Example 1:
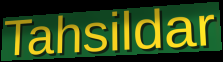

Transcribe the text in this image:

Tahsildar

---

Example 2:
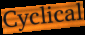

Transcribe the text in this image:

Cyclical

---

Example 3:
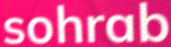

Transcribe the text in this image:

sohrab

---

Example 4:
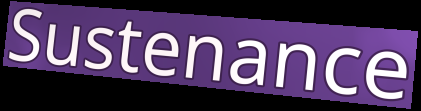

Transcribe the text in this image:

Sustenance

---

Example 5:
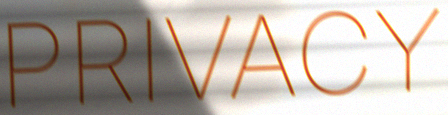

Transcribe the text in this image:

PRIVACY